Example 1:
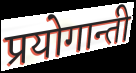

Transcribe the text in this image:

प्रयोगान्ती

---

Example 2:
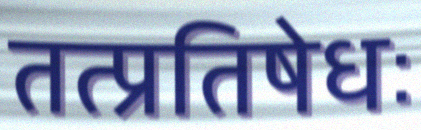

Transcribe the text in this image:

तत्प्रतिषेधः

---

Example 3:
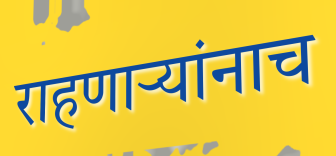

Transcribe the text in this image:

राहणाऱ्यांनाच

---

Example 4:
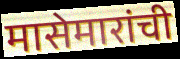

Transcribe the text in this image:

मासेमारांची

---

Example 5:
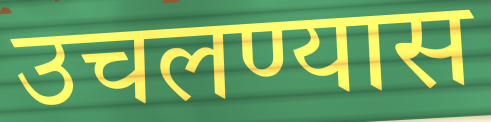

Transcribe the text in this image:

उचलण्यास